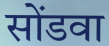
सोंडवा